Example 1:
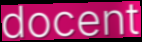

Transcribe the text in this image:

docent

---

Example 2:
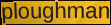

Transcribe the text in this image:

ploughman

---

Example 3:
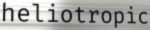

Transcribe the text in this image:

heliotropic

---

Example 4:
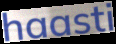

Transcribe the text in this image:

haasti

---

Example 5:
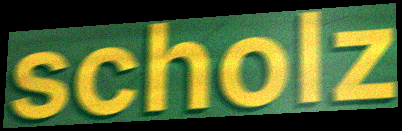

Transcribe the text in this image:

scholz